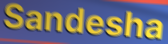
Sandesha